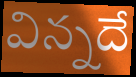
విన్నదే